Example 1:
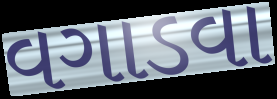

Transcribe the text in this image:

વગાડવા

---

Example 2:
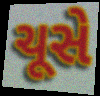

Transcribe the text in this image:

ચૂસે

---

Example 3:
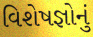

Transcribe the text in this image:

વિશેષજ્ઞોનું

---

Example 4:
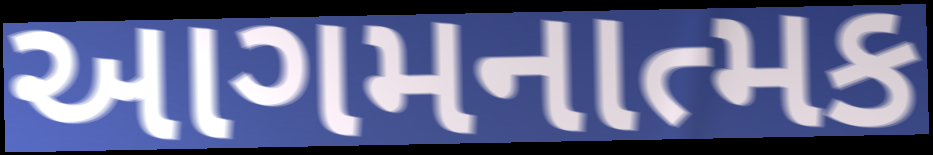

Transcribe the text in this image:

આગમનાત્મક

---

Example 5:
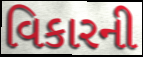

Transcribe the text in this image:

વિકારની